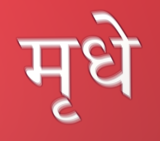
मृधे